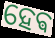
ହେଵ